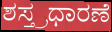
ಶಸ್ತ್ರಧಾರಣೆ